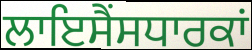
ਲਾਇਸੈਂਸਧਾਰਕਾਂ